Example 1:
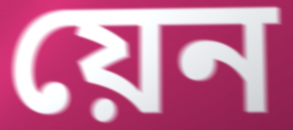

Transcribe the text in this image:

য়েন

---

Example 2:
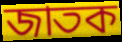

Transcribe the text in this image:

জাতক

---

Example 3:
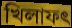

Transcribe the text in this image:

খিলাফৎ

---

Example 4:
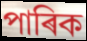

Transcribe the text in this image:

পাৰিক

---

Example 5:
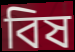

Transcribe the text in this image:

বিষ